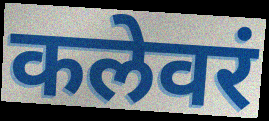
कलेवरं